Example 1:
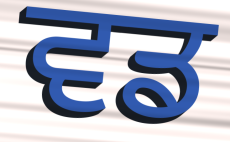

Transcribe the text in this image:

ਵਡ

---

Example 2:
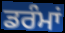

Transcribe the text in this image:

ਡਰੰਮਾਂ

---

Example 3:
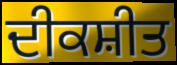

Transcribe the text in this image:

ਦੀਕਸ਼ੀਤ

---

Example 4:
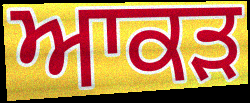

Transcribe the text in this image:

ਆਕੜ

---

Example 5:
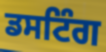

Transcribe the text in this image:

ਡਸਟਿੰਗ